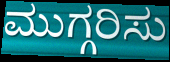
ಮುಗ್ಗರಿಸು